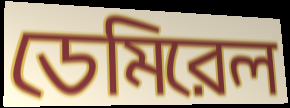
ডেমিরেল